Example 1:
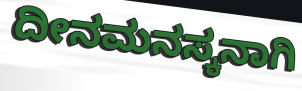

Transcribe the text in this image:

ದೀನಮನಸ್ಕನಾಗಿ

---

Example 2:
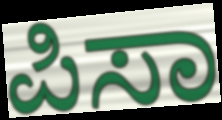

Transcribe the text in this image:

ಪಿಸಾ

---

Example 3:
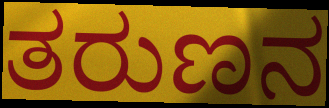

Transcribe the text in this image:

ತರುಣನ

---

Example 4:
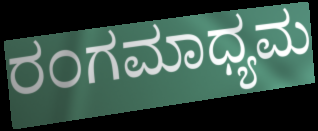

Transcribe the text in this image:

ರಂಗಮಾಧ್ಯಮ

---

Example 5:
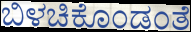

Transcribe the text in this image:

ಬಿಳಚಿಕೊಂಡಂತೆ